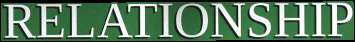
RELATIONSHIP